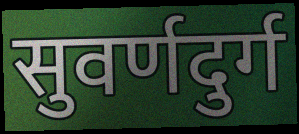
सुवर्णदुर्ग